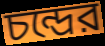
চন্দ্রের